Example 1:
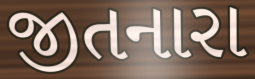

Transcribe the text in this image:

જીતનારા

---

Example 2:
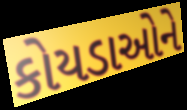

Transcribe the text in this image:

કોયડાઓને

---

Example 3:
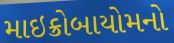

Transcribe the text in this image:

માઇક્રોબાયોમનો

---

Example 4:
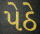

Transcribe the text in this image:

પેઠે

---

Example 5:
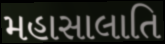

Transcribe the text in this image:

મહાસાલાતિ